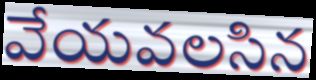
వేయవలసిన